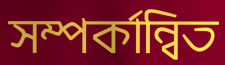
সম্পর্কান্বিত